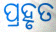
ପ୍ରହୃତ